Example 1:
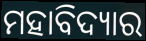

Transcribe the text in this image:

ମହାବିଦ୍ୟାର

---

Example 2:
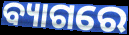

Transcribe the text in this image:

ବ୍ୟାଗରେ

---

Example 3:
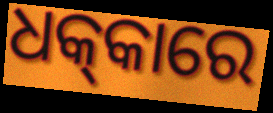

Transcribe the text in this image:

ଧକ୍‌କାରେ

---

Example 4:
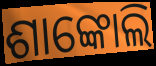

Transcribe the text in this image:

ଶାଙ୍କୋଲି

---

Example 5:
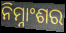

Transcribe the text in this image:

ନିମ୍ନାଂଶର